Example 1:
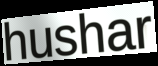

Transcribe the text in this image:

hushar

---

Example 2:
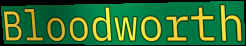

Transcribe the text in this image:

Bloodworth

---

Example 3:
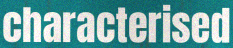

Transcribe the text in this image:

characterised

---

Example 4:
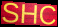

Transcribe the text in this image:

SHC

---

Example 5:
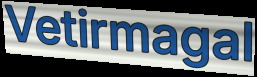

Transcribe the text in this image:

Vetirmagal